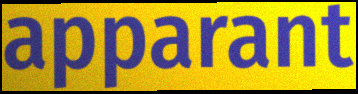
apparant